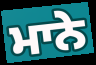
ਮਾਨੇ